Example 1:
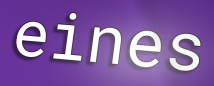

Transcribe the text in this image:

eines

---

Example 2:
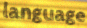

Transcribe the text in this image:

language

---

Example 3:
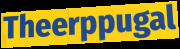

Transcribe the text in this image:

Theerppugal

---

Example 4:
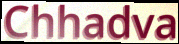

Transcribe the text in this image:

Chhadva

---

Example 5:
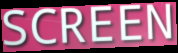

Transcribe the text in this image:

SCREEN